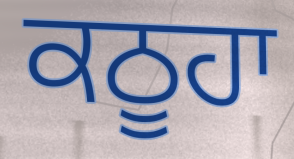
ਕਠੂਹਾ